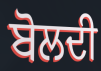
ਬੋਲਦੀ